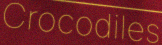
Crocodiles